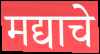
मद्याचे